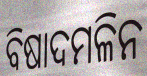
ବିଷାଦମଳିନ